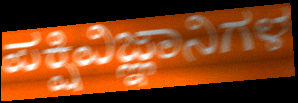
ಪಕ್ಷಿವಿಜ್ಞಾನಿಗಳ